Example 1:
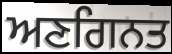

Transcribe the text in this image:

ਅਣਗਿਨਤ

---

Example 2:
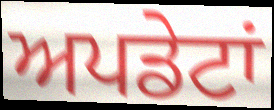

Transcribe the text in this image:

ਅਪਡੇਟਾਂ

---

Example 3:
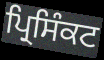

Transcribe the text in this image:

ਪ੍ਰਿਸਿੰਕਟ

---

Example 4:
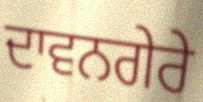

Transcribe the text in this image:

ਦਾਵਨਗੇਰੇ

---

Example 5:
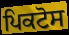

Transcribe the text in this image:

ਪਿਕਟੋਸ